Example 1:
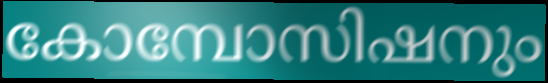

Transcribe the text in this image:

കോമ്പോസിഷനും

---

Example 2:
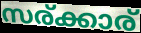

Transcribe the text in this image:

സര്ക്കാര്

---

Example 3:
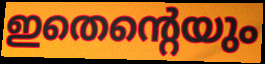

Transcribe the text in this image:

ഇതെന്റെയും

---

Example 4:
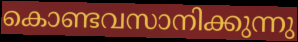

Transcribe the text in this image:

കൊണ്ടവസാനിക്കുന്നു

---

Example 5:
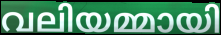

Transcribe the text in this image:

വലിയമ്മായി